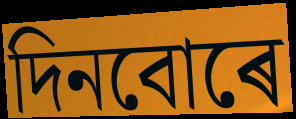
দিনবোৰে